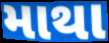
માથા